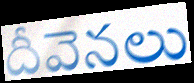
దీవెనలు